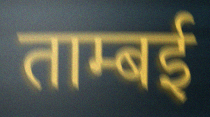
ताम्बई